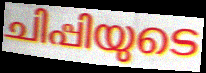
ചിപ്പിയുടെ